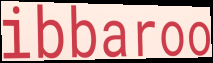
ibbaroo